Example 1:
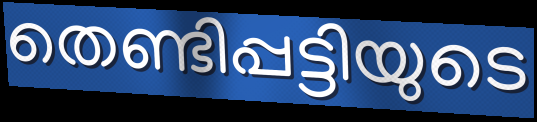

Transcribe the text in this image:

തെണ്ടിപ്പട്ടിയുടെ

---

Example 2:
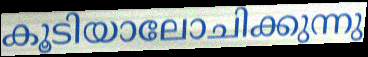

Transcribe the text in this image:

കൂടിയാലോചിക്കുന്നു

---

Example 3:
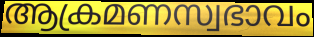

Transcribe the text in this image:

ആക്രമണസ്വഭാവം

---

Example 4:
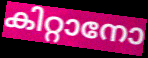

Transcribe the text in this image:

കിറ്റാനോ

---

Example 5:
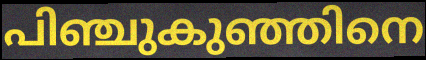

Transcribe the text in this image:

പിഞ്ചുകുഞ്ഞിനെ